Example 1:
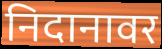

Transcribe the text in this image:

निदानावर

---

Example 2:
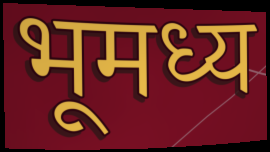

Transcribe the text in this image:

भूमध्य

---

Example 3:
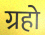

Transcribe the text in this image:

ग्रहो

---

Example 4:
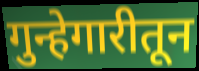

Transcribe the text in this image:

गुन्हेगारीतून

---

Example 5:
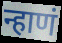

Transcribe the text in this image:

न्हाणं